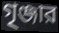
গৃঞ্জার